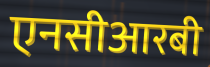
एनसीआरबी